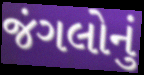
જંગલોનું